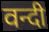
वन्दी